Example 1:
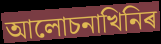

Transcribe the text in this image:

আলোচনাখিনিৰ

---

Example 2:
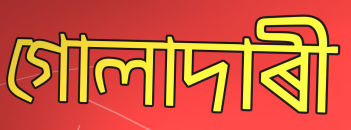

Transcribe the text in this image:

গোলাদাৰী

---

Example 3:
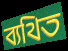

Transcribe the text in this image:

ব্যথিত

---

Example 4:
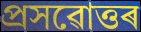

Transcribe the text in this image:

প্ৰসৱোত্তৰ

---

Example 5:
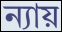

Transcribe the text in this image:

ন্যায়